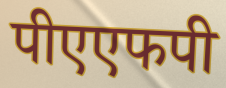
पीएएफपी